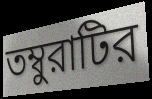
তম্বুরাটির